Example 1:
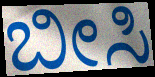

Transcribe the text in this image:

ಬೀಸಿ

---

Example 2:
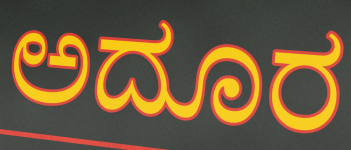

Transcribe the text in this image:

ಅದೂರ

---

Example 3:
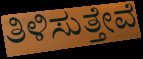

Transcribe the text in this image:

ತಿಳಿಸುತ್ತೇವೆ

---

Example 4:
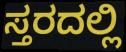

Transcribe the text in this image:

ಸ್ತರದಲ್ಲಿ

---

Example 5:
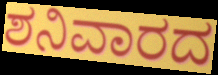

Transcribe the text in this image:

ಶನಿವಾರದ